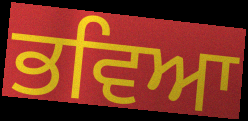
ਭਵਿਆ